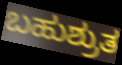
ಬಹುಶ್ರುತ